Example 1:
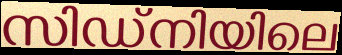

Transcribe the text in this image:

സിഡ്നിയിലെ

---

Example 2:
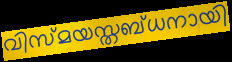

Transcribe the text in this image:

വിസ്മയസ്തബ്ധനായി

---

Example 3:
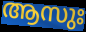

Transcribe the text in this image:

ആസുഃ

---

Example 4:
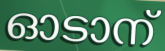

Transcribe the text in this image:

ഓടാന്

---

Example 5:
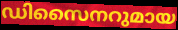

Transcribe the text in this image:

ഡിസൈനറുമായ